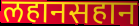
लहानसहान